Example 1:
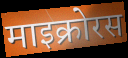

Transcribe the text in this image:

माइक्रोरस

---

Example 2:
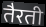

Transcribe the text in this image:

तैरती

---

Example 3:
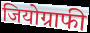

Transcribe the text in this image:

जियोग्राफी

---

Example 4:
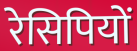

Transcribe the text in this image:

रेसिपियों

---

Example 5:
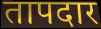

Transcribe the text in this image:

तापदार